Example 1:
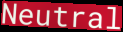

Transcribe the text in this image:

Neutral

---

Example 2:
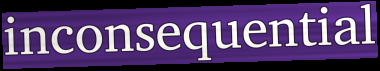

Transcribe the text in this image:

inconsequential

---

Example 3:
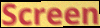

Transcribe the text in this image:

Screen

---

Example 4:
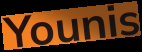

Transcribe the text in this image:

Younis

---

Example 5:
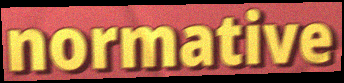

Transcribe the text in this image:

normative